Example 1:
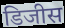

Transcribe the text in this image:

डिजीस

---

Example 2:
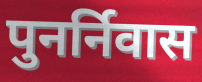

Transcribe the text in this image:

पुनर्निवास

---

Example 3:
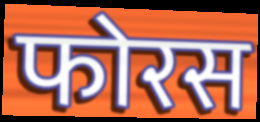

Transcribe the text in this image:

फोरस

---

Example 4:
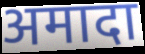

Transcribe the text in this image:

अमादा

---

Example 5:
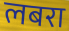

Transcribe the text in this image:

लबरा